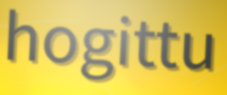
hogittu